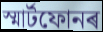
স্মাৰ্টফোনৰ